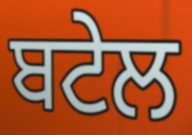
ਬਟੇਲ